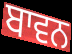
ਬਾਵਨ